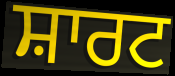
ਸ਼ਾਰਟ